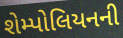
શેમ્પોલિયનની